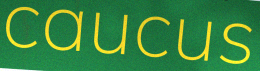
caucus